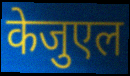
केजुएल